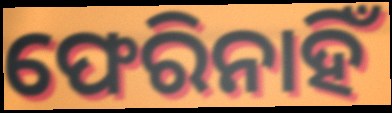
ଫେରିନାହିଁ